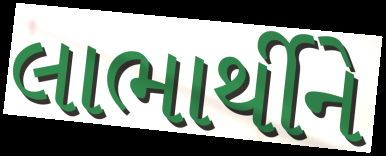
લાભાર્થીને